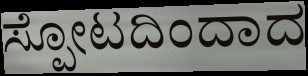
ಸ್ಪೋಟದಿಂದಾದ